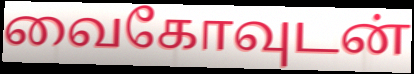
வைகோவுடன்